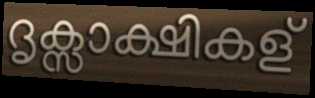
ദൃക്സാക്ഷികള്